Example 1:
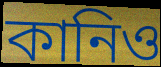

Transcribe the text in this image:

কানিও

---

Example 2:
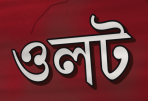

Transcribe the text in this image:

ওলট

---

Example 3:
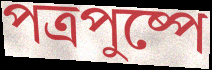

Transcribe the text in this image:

পত্রপুষ্পে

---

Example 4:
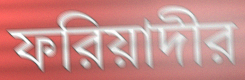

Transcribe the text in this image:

ফরিয়াদীর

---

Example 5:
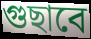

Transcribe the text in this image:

গুছাবে